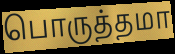
பொருத்தமா